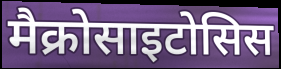
मैक्रोसाइटोसिस